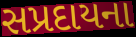
સપ્રદાયના